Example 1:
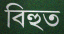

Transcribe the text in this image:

বিহুত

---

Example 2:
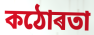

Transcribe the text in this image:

কঠোৰতা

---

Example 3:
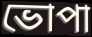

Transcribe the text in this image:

ভোপা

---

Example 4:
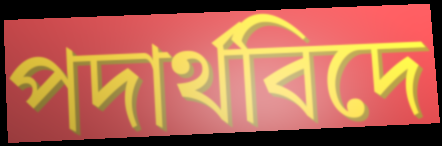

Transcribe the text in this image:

পদাৰ্থবিদে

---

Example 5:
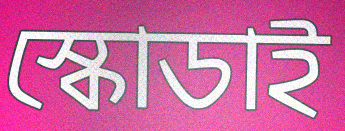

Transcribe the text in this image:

স্কোডাই